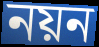
নয়ন